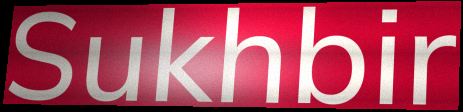
Sukhbir